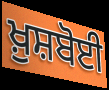
ਖ਼ੁਸ਼ਬੋਈ